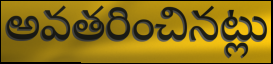
అవతరించినట్లు